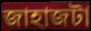
জাহাজটা